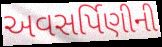
અવસર્પિણીની